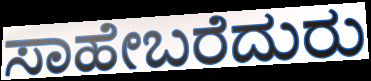
ಸಾಹೇಬರೆದುರು